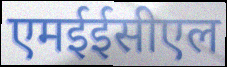
एमईईसीएल